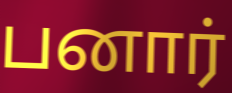
பனார்